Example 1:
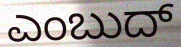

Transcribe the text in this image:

ಎಂಬುದ್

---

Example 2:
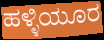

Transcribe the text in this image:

ಹಳ್ಳಿಯೂರ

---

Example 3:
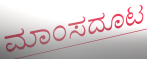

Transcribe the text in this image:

ಮಾಂಸದೂಟ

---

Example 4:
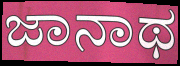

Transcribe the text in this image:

ಜಾನಾಥ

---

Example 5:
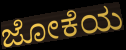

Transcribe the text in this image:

ಜೋಕೆಯ